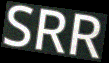
SRR